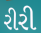
રીરી